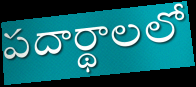
పదార్థాలలో